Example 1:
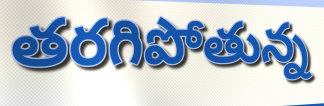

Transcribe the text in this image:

తరగిపోతున్న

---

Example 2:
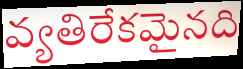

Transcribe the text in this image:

వ్యతిరేకమైనది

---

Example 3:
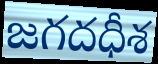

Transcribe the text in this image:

జగదధీశ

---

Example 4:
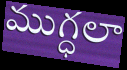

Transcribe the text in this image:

ముగ్ధలా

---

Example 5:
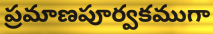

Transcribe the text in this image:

ప్రమాణపూర్వకముగా